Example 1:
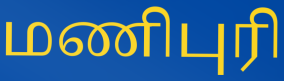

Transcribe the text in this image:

மணிபுரி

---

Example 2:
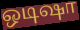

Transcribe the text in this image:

ஒடிஷா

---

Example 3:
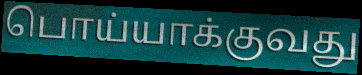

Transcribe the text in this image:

பொய்யாக்குவது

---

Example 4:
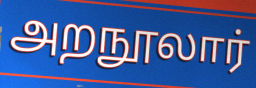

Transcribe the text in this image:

அறநூலார்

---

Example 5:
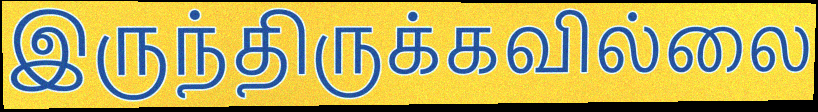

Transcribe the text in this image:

இருந்திருக்கவில்லை